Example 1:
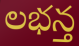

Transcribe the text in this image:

లభన్త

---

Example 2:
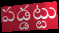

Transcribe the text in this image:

పడ్డట్టు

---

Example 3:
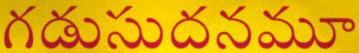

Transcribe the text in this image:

గడుసుదనమూ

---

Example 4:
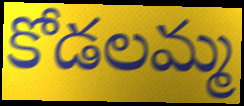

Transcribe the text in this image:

కోడలమ్మ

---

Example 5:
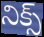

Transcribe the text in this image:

నిక్స్